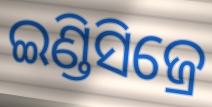
ଇଣ୍ଡିସିଜ୍ରେ